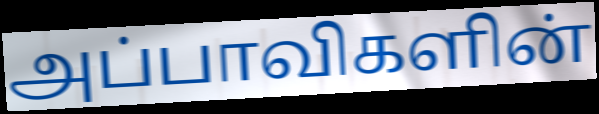
அப்பாவிகளின்